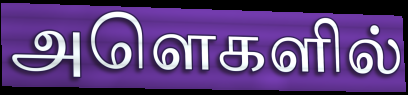
அளெகளில்